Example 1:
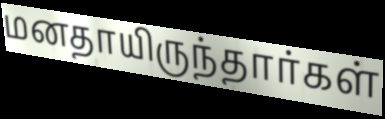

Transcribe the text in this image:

மனதாயிருந்தார்கள்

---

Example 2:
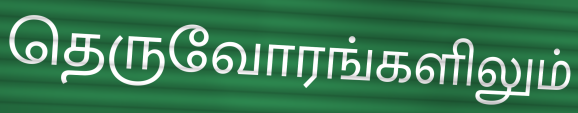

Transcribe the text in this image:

தெருவோரங்களிலும்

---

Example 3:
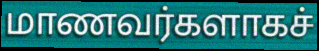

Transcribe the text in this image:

மாணவர்களாகச்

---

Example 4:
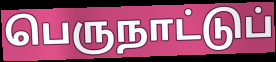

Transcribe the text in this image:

பெருநாட்டுப்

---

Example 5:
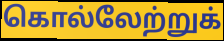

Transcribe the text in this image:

கொல்லேற்றுக்